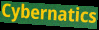
Cybernatics